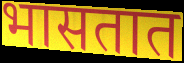
भासतात